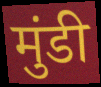
मुंडी